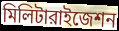
মিলিটারাইজেশন